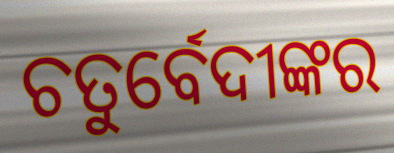
ଚତୁର୍ବେଦୀଙ୍କର